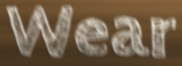
Wear